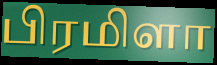
பிரமிளா